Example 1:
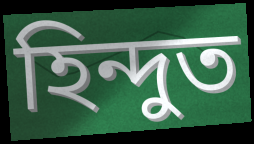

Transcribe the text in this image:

হিন্দুত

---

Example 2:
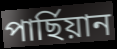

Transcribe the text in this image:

পাৰ্ছিয়ান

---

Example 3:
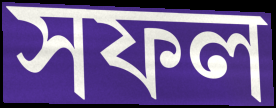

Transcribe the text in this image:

সফল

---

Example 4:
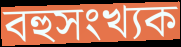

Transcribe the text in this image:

বহুসংখ্যক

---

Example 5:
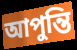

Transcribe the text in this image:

আপুন্তি